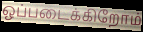
ஒப்படைக்கிறோம்